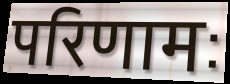
परिणामः